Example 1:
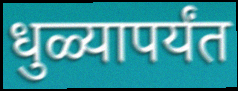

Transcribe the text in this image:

धुळ्यापर्यंत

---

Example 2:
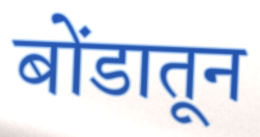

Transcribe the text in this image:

बोंडातून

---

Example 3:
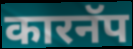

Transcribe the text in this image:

कारनॅप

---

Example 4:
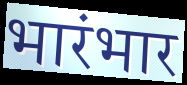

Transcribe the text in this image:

भारंभार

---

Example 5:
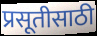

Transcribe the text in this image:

प्रसूतीसाठी